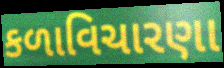
કળાવિચારણા